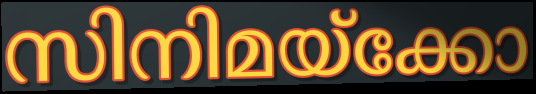
സിനിമയ്ക്കോ